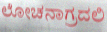
ಲೋಚನಾಗ್ರದಲಿ